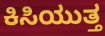
ಕಿಸಿಯುತ್ತ